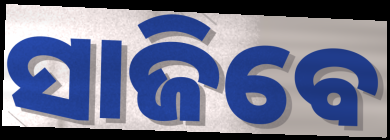
ସାଜିବେ